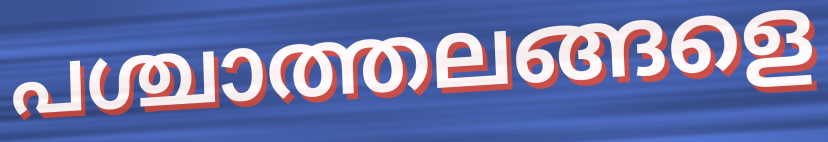
പശ്ചാത്തലങ്ങളെ